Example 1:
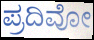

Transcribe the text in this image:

ಪ್ರದಿವೋ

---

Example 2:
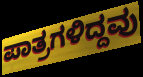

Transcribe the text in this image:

ಪಾತ್ರಗಳಿದ್ದವು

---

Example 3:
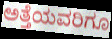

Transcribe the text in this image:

ಅತ್ತೆಯವರಿಗೂ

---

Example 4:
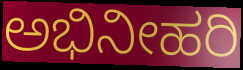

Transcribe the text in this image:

ಅಭಿನೀಹರಿ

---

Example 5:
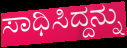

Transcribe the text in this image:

ಸಾಧಿಸಿದ್ದನ್ನು